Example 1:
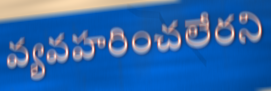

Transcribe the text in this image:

వ్యవహరించలేరని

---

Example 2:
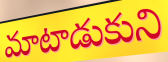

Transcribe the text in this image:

మాటాడుకుని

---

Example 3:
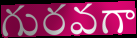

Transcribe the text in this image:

గురవగా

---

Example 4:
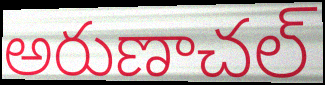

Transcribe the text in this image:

అరుణాచల్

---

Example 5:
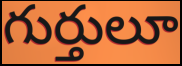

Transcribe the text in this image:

గుర్తులూ